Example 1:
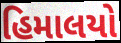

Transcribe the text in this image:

હિમાલયો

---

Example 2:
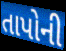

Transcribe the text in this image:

તાપોની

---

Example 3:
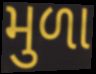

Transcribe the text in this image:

મુળા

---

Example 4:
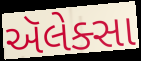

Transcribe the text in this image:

ઍલેક્સા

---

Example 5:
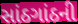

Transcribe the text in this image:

સાંઠગાંઠની